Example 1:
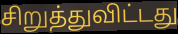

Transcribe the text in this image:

சிறுத்துவிட்டது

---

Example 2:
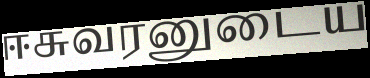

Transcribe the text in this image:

ஈசுவரனுடைய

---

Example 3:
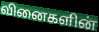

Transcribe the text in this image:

வினைகளின்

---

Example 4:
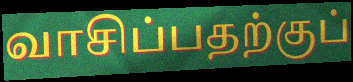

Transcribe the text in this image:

வாசிப்பதற்குப்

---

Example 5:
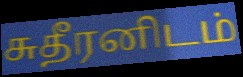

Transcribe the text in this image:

சுதீரனிடம்